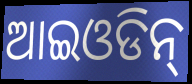
ଆଇଓଡିନ୍